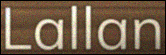
Lallan